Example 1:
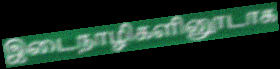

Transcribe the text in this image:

இடைநாழிகளினூடாக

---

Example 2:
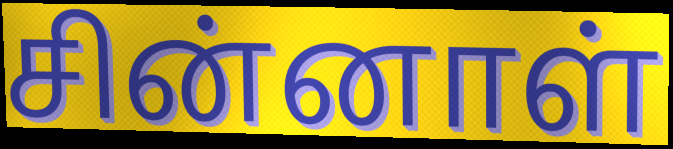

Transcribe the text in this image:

சின்னாள்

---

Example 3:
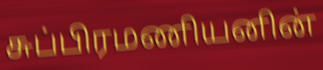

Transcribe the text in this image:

சுப்பிரமணியனின்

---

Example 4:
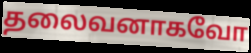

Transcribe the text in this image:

தலைவனாகவோ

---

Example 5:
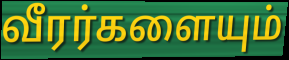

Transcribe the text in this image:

வீரர்களையும்